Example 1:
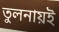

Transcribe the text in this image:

তুলনায়ই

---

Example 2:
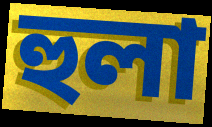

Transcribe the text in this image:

হুলা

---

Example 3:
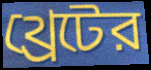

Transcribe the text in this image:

থ্রেটের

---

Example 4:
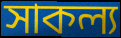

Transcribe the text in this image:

সাকল্য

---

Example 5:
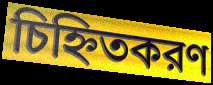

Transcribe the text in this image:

চিহ্নিতকরণ